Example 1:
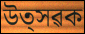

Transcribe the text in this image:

উত্সৱক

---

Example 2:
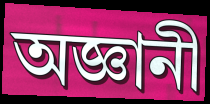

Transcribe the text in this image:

অজ্ঞানী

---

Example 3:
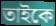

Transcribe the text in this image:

তাইকে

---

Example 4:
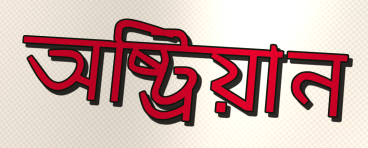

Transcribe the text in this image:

অষ্ট্ৰিয়ান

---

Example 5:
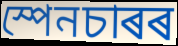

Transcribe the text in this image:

স্পেনচাৰৰ